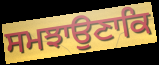
ਸਮਝਾਉਣਾਕਿ